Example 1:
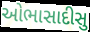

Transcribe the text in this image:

ઓભાસાદીસુ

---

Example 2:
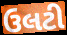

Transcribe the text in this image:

ઉલટી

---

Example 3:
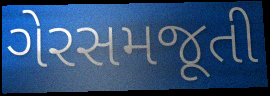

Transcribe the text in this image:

ગેરસમજૂતી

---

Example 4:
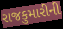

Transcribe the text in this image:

રાજકુમારીની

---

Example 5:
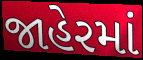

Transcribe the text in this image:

જાહેરમાં